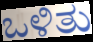
ಒಳಿತು